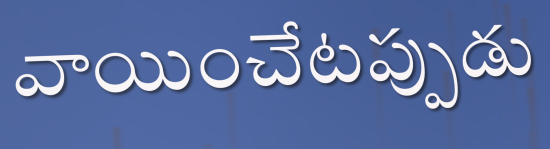
వాయించేటప్పుడు